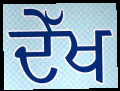
ਦੇੱਖ